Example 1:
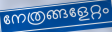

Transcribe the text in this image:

നേത്രങ്ങളേറ്റം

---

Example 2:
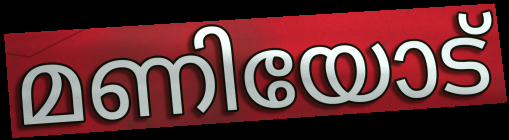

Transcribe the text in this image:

മണിയോട്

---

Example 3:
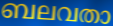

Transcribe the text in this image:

ബലവതാ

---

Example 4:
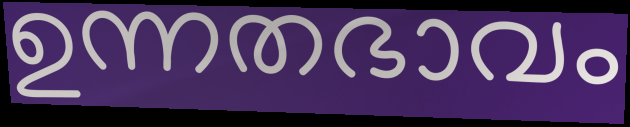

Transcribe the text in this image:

ഉന്നതഭാവം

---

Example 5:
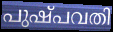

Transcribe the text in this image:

പുഷ്പവതി